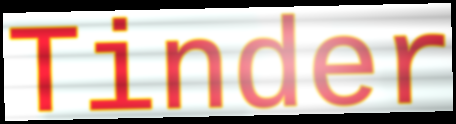
Tinder